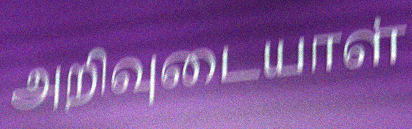
அறிவுடையாள்